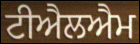
ਟੀਐਲਐਮ